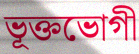
ভূক্তভোগী